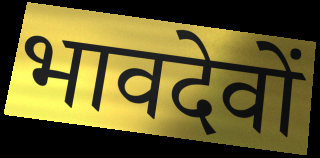
भावदेवों